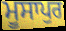
ਮੂਸਾਪੁਰ